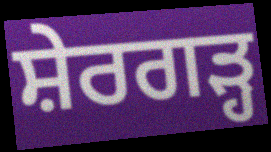
ਸ਼ੇਰਗੜ੍ਹ